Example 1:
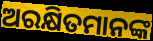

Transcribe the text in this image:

ଅରକ୍ଷିତମାନଙ୍କ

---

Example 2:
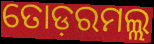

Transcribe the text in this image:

ତୋଡ଼ରମଲ୍ଲ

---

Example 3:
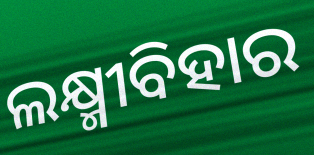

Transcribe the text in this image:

ଲକ୍ଷ୍ମୀବିହାର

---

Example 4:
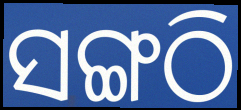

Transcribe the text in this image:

ସଙ୍ଗଠି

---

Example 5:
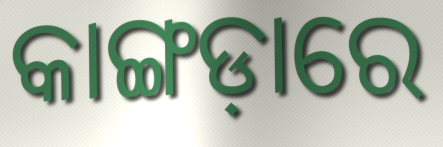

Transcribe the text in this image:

କାଙ୍ଗଡ଼ାରେ